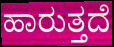
ಹಾರುತ್ತದೆ